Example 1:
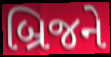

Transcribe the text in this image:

બ્રિજને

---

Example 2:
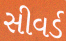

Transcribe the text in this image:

સીવર્ડ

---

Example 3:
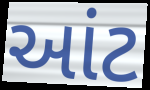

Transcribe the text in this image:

આંટ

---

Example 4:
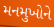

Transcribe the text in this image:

મનમુખોને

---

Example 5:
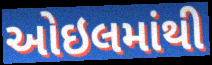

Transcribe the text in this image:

ઓઇલમાંથી